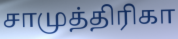
சாமுத்திரிகா